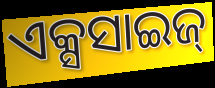
ଏକ୍ସସାଇଜ୍